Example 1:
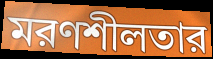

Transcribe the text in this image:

মরণশীলতার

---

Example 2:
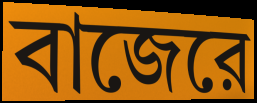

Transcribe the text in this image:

বাজেরে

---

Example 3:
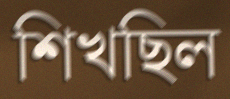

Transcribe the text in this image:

শিখছিল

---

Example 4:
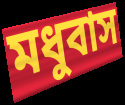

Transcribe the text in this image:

মধুবাস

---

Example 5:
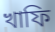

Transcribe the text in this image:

খাফি